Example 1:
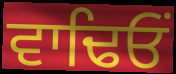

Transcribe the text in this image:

ਵਾਢਿਓਂ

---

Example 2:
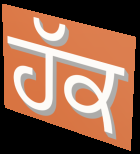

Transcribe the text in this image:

ਹੱਕ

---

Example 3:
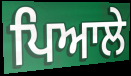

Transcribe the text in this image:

ਪਿਆਲੇ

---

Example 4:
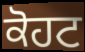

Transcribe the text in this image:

ਕੋਹਟ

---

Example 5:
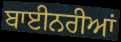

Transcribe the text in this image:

ਬਾਈਨਰੀਆਂ